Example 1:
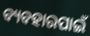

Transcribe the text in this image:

ବ୍ୟବହାରପାଇଁ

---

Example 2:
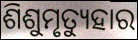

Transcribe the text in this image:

ଶିଶୁମୃତ୍ୟୁହାର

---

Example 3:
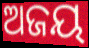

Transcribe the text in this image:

ଅଜୟ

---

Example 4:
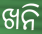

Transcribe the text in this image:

ଖନି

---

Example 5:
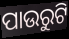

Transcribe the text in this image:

ପାଉରୁଟି